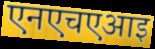
एनएचएआइ